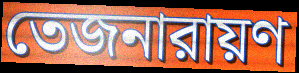
তেজনারায়ণ